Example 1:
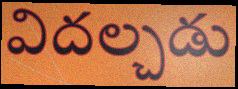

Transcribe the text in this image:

విదల్చడు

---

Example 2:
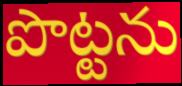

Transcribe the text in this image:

పొట్టను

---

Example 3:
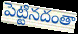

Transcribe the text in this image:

పెట్టినదంతా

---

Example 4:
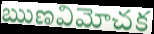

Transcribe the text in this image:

ఋణవిమోచక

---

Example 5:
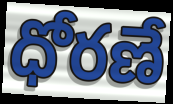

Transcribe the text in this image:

ధోరణే